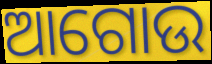
ଆଗୋଉ